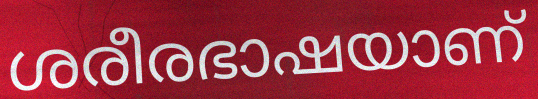
ശരീരഭാഷയാണ്